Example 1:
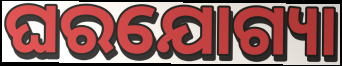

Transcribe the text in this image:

ଘରଯୋଗ୍ୟା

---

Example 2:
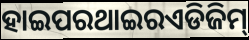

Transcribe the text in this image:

ହାଇପରଥାଇରଏଡିଜିମ୍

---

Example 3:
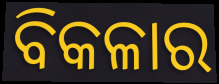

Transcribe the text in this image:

ବିକଳାର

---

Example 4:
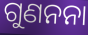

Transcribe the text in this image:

ଗୁଣନନା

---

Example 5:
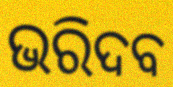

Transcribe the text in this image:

ଭରିଦବ